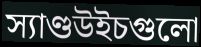
স্যাণ্ডউইচগুলো